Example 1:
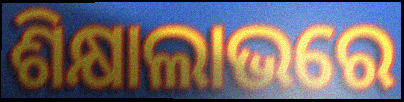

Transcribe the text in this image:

ଶିକ୍ଷାଲାଭରେ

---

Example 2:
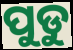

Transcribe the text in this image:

ପୁଡୁ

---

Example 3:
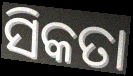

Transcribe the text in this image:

ସିକତା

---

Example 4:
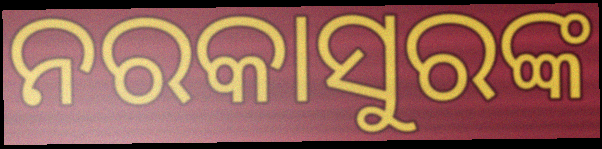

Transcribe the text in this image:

ନରକାସୁରଙ୍କ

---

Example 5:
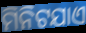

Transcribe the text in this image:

ମିନିଟଯାଏ